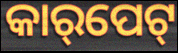
କାର୍‌ପେଟ୍